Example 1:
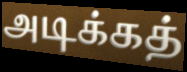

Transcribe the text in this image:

அடிக்கத்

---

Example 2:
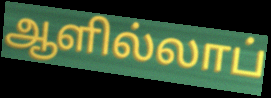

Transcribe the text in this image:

ஆளில்லாப்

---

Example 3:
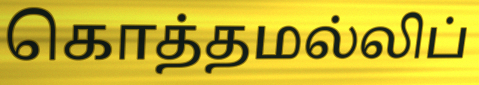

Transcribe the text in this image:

கொத்தமல்லிப்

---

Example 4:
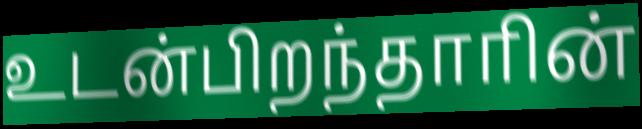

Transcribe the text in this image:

உடன்பிறந்தாரின்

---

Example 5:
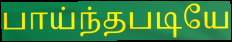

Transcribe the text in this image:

பாய்ந்தபடியே